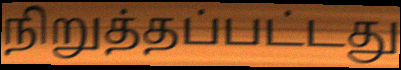
நிறுத்தப்பட்டது